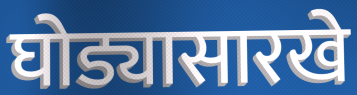
घोड्यासारखे